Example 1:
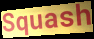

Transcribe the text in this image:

Squash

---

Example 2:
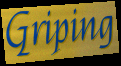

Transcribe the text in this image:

Griping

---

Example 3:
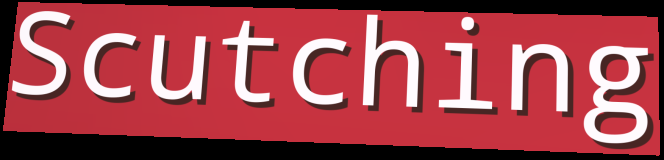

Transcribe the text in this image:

Scutching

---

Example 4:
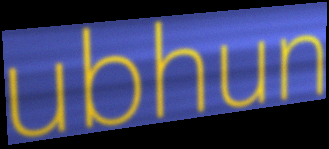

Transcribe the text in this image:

ubhun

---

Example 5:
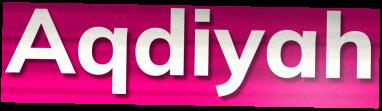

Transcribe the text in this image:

Aqdiyah